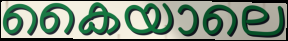
കൈയാലെ